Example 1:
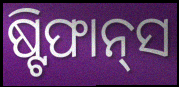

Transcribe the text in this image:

ଷ୍ଟିଫାନ୍‍ସ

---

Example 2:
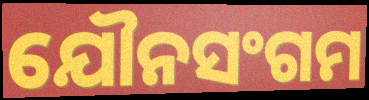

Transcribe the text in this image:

ଯୌନସଂଗମ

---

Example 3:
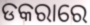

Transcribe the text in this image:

ଡକରାରେ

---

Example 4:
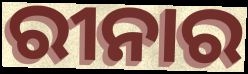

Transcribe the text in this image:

ରୀନାର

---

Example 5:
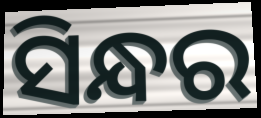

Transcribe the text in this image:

ସିନ୍ଧର